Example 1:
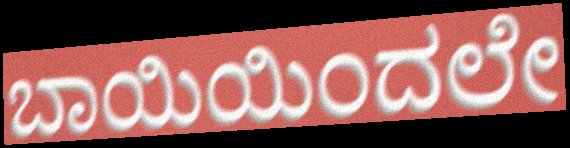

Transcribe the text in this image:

ಬಾಯಿಯಿಂದಲೇ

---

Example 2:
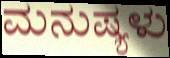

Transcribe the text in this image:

ಮನುಷ್ಯಳು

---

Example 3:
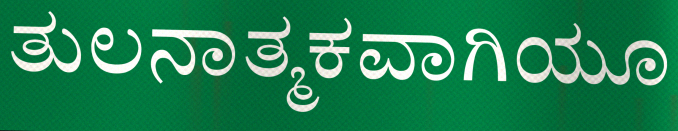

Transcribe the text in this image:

ತುಲನಾತ್ಮಕವಾಗಿಯೂ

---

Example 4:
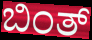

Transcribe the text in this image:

ಬಿಂತ್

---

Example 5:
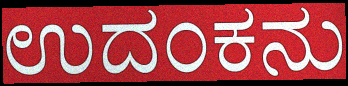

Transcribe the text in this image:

ಉದಂಕನು